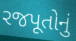
રજપૂતોનું